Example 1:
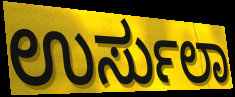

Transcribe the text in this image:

ಉರ್ಸುಲಾ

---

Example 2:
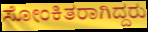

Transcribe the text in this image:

ಸೋಂಕಿತರಾಗಿದ್ದರು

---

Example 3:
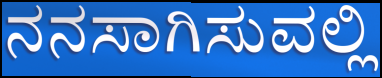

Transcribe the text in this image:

ನನಸಾಗಿಸುವಲ್ಲಿ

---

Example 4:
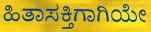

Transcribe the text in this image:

ಹಿತಾಸಕ್ತಿಗಾಗಿಯೇ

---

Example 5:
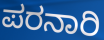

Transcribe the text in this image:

ಪರನಾರಿ